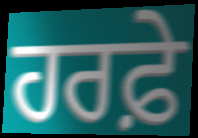
ਹਰਫ਼ੇ